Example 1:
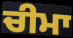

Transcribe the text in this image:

ਚੀਮਾ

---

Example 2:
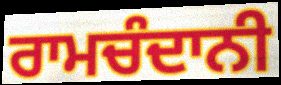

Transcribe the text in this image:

ਰਾਮਚੰਦਾਨੀ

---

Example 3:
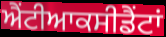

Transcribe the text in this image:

ਐਂਟੀਆਕਸੀਡੈਂਟਾਂ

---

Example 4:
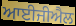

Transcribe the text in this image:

ਆਈਜੀਐਲ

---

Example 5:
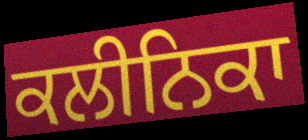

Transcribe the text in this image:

ਕਲੀਨਿਕਾ